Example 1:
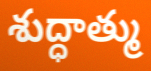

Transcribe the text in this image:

శుద్ధాత్ము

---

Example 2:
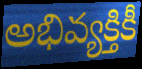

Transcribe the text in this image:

అభివ్యక్తికీ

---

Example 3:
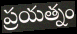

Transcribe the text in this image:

ప్రయత్నం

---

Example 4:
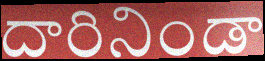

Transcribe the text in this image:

దారినిండా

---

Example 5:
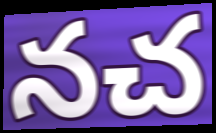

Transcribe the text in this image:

నచ